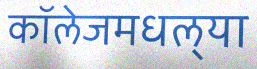
कॉलेजमधल्या